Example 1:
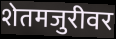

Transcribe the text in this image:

शेतमजुरीवर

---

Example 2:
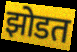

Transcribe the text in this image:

झोडत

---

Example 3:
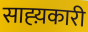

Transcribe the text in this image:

साह्य़कारी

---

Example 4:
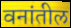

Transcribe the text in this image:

वनांतील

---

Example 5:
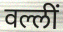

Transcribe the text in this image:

वल्लीं